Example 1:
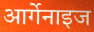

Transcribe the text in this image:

आर्गेनाइज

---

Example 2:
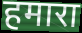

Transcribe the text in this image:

हमारा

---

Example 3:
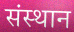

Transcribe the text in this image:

संस्थान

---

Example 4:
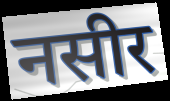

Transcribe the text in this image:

नसीर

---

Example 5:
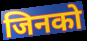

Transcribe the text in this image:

जिनको